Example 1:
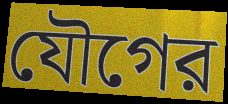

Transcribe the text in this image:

যৌগের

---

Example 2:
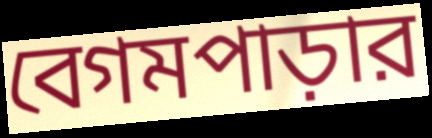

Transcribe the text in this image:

বেগমপাড়ার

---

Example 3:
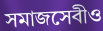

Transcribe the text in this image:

সমাজসেবীও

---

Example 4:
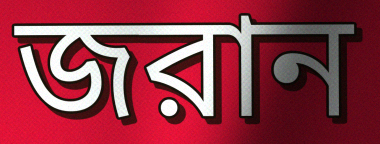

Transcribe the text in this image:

জরান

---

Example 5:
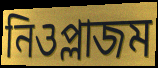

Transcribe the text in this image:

নিওপ্লাজম